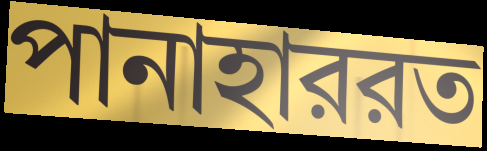
পানাহাররত